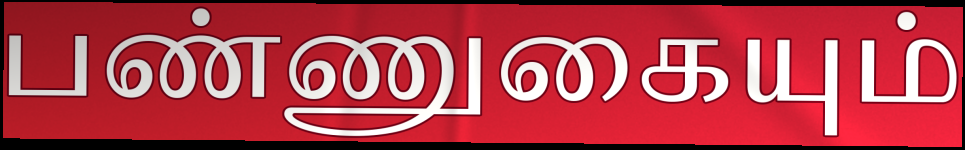
பண்ணுகையும்